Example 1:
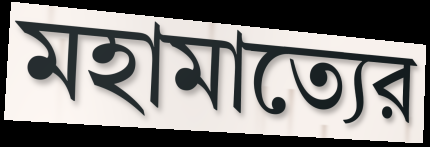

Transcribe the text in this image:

মহামাত্যের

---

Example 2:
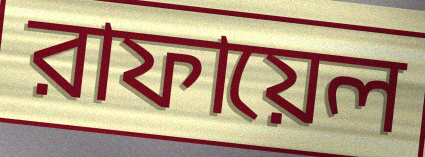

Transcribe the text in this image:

রাফায়েল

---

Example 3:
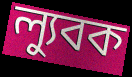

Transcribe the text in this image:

ল্যুবক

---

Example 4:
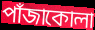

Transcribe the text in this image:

পাঁজাকোলা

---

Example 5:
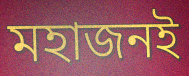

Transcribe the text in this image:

মহাজনই